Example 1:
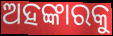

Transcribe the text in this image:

ଅହଙ୍କାରକୁ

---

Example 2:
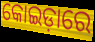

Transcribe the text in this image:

କୋଇଡ଼ାରେ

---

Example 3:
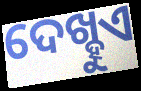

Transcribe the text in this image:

ଦେଖ୍ହୁଏ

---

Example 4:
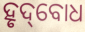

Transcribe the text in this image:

ହୃଦ୍‌ବୋଧ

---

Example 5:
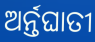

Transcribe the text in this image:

ଅର୍ନ୍ତଘାତୀ